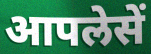
आपलेसें